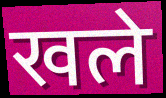
खले